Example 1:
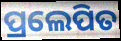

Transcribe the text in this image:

ପ୍ରଲେପିତ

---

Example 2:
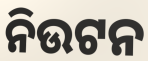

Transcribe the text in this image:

ନିଉଟନ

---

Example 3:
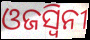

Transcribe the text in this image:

ଓଜସ୍ଵିନୀ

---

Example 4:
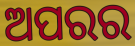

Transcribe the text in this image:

ଅପରର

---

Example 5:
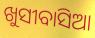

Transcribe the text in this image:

ଖୁସୀବାସିଆ